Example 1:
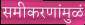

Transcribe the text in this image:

समीकरणांमुळं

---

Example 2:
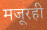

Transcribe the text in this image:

मजूरही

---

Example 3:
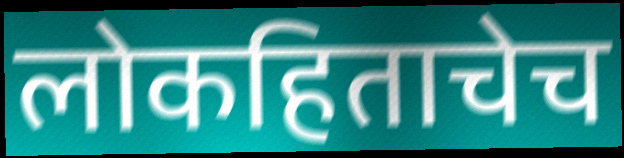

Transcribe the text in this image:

लोकहिताचेच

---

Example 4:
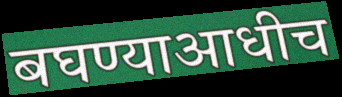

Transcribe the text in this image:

बघण्याआधीच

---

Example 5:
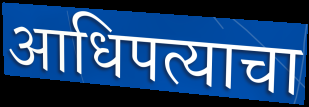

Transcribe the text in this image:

आधिपत्याचा